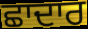
ਛਾਦਾਰ